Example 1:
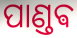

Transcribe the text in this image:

ପାଣ୍ଡଵ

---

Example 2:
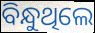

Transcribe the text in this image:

ବିନ୍ଧୁଥିଲେ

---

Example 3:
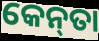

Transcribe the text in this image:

କେନ୍‌ତା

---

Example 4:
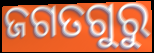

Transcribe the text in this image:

ଜଗତଗୁରୁ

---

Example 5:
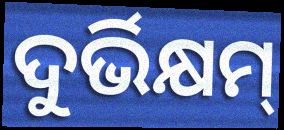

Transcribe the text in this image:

ଦୁର୍ଭିକ୍ଷମ୍